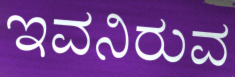
ಇವನಿರುವ